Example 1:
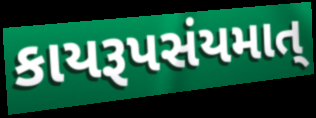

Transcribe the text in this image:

કાયરૂપસંયમાત્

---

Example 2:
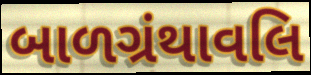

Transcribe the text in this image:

બાળગ્રંથાવલિ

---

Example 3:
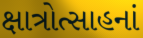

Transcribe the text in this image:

ક્ષાત્રોત્સાહનાં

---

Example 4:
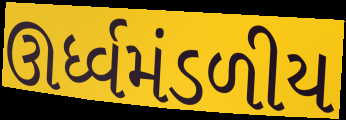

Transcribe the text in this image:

ઊર્ધ્વમંડળીય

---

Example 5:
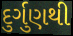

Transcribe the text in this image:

દુર્ગુણથી